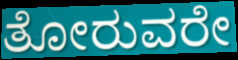
ತೋರುವರೇ